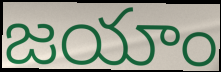
జయాం